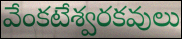
వేంకటేశ్వరకవులు